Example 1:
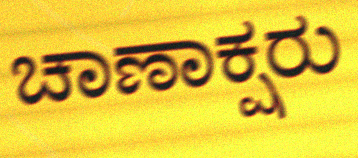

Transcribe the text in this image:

ಚಾಣಾಕ್ಷರು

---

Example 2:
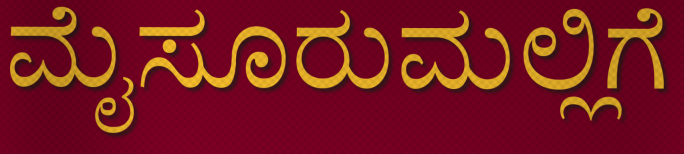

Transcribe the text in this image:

ಮೈಸೂರುಮಲ್ಲಿಗೆ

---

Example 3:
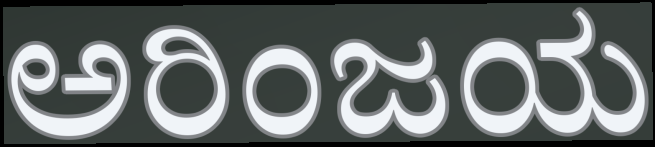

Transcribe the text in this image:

ಅರಿಂಜಯ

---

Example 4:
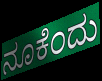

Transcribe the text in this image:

ನೂಕೆಂದು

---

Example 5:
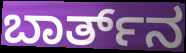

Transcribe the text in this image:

ಬಾರ್ತ್‌ನ